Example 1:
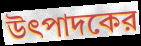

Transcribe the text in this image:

উৎপাদকের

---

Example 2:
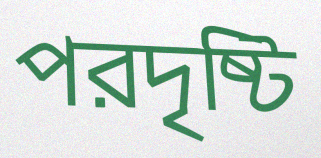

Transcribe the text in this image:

পরদৃষ্টি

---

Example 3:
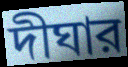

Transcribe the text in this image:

দীঘার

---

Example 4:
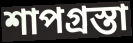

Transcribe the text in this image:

শাপগ্রস্তা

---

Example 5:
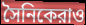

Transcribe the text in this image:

সৈনিকেরাও